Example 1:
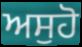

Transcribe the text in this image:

ਅਸੁਹੋ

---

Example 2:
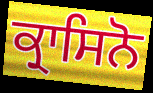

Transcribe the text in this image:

ਕ੍ਰਾਸਿਨੋ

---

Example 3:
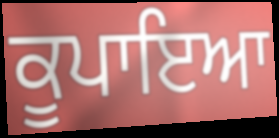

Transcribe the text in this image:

ਕੂਪਾਇਆ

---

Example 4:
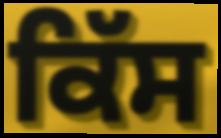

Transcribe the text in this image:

ਕਿੱਸ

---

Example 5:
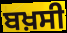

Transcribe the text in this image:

ਬਖ਼ਸੀ